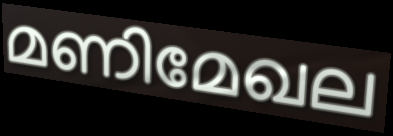
മണിമേഖല